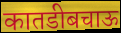
कातडीबचाऊ